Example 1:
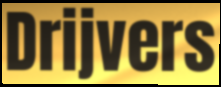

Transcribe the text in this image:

Drijvers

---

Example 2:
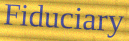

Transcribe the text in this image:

Fiduciary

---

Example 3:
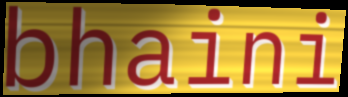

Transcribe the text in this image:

bhaini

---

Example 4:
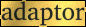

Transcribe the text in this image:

adaptor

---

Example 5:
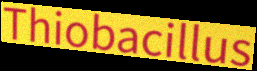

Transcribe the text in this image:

Thiobacillus